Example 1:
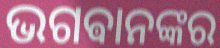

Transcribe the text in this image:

ଭଗଵାନଙ୍କର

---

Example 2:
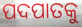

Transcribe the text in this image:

ପଦପାତକୁ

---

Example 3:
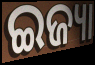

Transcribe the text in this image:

ଇଜ୍ୟା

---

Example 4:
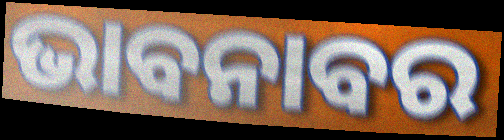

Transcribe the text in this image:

ଭାବନାବର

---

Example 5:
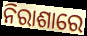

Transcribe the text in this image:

ନିରାଶାରେ